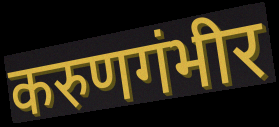
करुणगंभीर